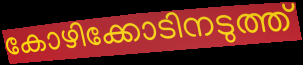
കോഴിക്കോടിനടുത്ത്